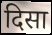
दिसा